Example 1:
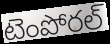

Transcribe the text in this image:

టెంపోరల్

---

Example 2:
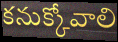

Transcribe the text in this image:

కనుక్కోవాలి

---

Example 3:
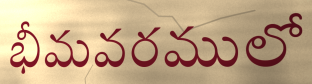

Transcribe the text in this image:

భీమవరములో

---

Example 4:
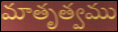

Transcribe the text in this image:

మాతృత్వము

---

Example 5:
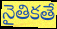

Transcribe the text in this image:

నైతికతే